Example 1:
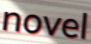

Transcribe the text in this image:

novel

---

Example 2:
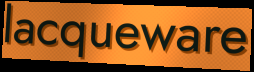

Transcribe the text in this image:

lacqueware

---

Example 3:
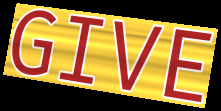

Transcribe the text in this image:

GIVE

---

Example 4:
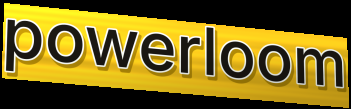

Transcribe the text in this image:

powerloom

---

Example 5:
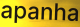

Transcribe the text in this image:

apanha